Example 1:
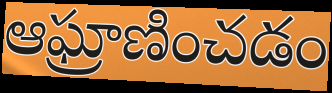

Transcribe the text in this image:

ఆఘ్రాణించడం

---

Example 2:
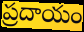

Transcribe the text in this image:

ప్రదాయం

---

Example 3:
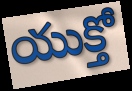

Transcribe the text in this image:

యుక్తో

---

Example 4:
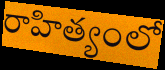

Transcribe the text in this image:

రాహిత్యంలో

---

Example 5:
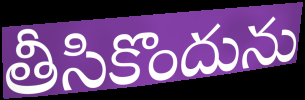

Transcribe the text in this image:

తీసికొందును